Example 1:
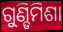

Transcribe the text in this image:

ଗୁଣ୍ଡିମିଶା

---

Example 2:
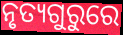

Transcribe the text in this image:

ନୃତ୍ୟଗୁରୁରେ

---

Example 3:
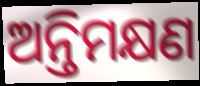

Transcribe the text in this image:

ଅନ୍ତିମକ୍ଷଣ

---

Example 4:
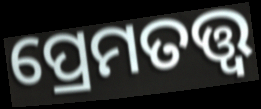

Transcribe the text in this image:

ପ୍ରେମତତ୍ତ୍ୱ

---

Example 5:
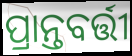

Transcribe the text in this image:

ପ୍ରାନ୍ତବର୍ତ୍ତୀ